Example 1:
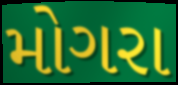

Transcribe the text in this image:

મોગરા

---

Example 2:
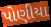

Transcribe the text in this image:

પોણીયા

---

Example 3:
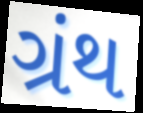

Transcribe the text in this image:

ગ્રંથ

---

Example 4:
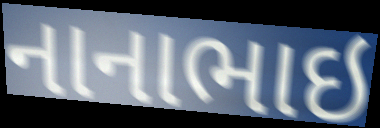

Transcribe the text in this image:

નાનાભાઇ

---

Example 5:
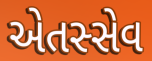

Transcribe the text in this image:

એતસ્સેવ